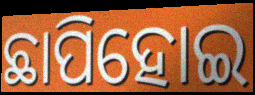
ଛାପିହୋଇ